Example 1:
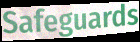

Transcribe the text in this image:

Safeguards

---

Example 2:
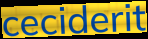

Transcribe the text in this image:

ceciderit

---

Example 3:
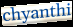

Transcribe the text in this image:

chyanthi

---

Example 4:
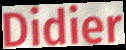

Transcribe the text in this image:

Didier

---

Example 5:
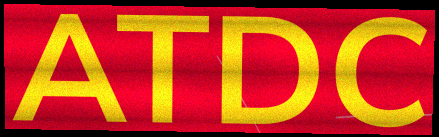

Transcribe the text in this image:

ATDC